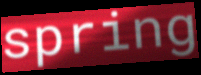
spring